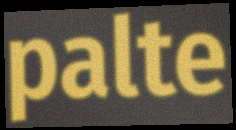
palte